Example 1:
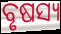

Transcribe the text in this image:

ବୃଷସ୍ୟ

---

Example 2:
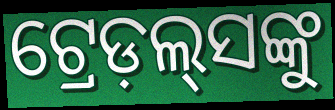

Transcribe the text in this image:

ଟ୍ରେଡ଼ଲ୍‍ସଙ୍କୁ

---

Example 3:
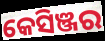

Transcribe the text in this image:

କେସିଞ୍ଜର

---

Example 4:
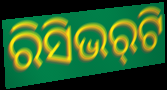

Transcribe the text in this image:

ରିସିଭର୍‌ଟି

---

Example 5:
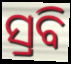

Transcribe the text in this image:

ସ୍ରବି